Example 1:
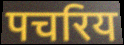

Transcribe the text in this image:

पचरिय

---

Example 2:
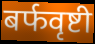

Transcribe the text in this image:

बर्फवृष्टी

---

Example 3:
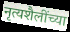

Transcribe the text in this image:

नृत्यशैलींच्या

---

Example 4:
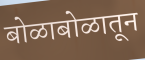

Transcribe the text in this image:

बोळाबोळातून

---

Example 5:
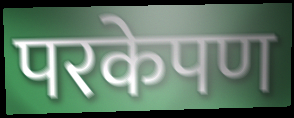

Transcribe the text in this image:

परकेपण